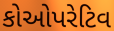
કોઓપરેટિવ